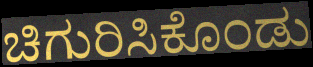
ಚಿಗುರಿಸಿಕೊಂಡು